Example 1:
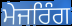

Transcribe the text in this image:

ਮੇਜਰਿੰਗ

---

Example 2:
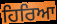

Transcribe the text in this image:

ਹਿਰਿਆ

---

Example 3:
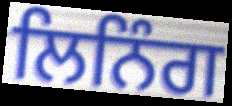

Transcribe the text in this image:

ਲਿਨਿੰਗ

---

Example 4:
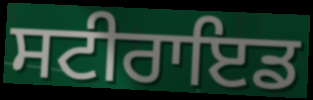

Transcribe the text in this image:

ਸਟੀਰਾਇਡ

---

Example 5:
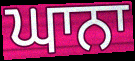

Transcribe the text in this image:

ਘਾਨਾ